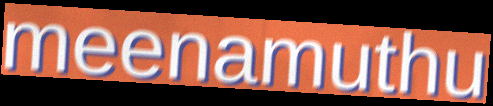
meenamuthu